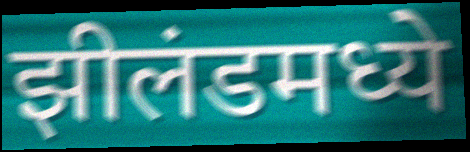
झीलंडमध्ये